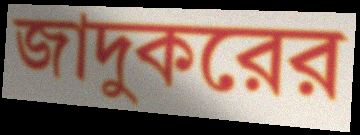
জাদুকরের